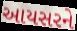
આયસરને